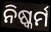
ନିଷ୍କର୍ମ